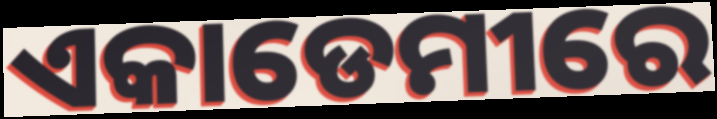
ଏକାଡେମୀରେ